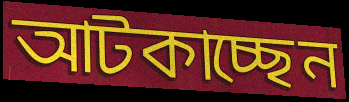
আটকাচ্ছেন